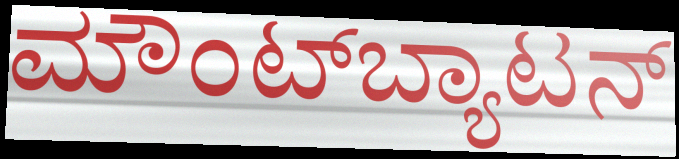
ಮೌಂಟ್‌ಬ್ಯಾಟನ್